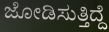
ಜೋಡಿಸುತ್ತಿದ್ದೆ